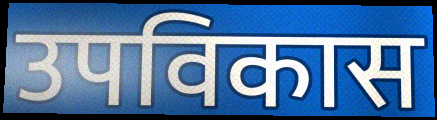
उपविकास